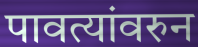
पावत्यांवरुन